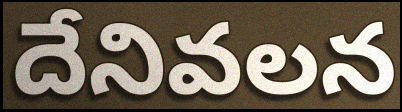
దేనివలన